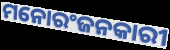
ମନୋରଂଜନକାରୀ